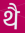
थै